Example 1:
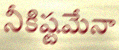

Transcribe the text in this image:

నీకిష్టమేనా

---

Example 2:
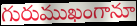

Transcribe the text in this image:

గురుముఖంగానూ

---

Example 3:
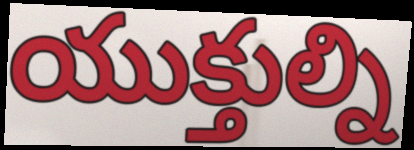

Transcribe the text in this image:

యుక్తుల్ని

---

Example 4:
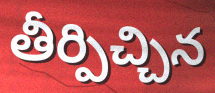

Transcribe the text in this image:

తీర్పిచ్చిన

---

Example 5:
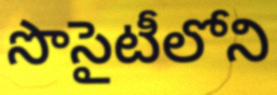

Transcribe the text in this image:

సొసైటీలోని